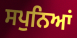
ਸਪੁਨਿਆਂ